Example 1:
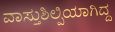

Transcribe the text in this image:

ವಾಸ್ತುಶಿಲ್ಪಿಯಾಗಿದ್ದ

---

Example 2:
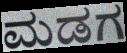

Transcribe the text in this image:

ಮಡಗ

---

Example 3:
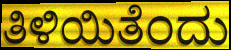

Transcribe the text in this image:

ತಿಳಿಯಿತೆಂದು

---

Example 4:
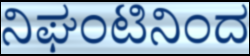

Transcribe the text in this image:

ನಿಘಂಟಿನಿಂದ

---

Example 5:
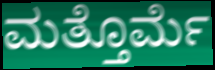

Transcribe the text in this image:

ಮತ್ತೊರ್ಮೆ